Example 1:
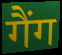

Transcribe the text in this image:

गैंग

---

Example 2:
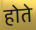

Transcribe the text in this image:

होते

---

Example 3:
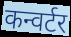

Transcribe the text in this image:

कन्वर्टर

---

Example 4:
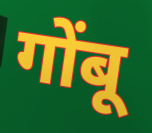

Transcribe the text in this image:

गोंबू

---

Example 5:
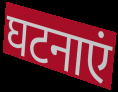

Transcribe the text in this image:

घटनाएं